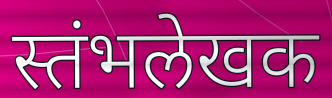
स्तंभलेखक